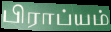
பிராப்யம்